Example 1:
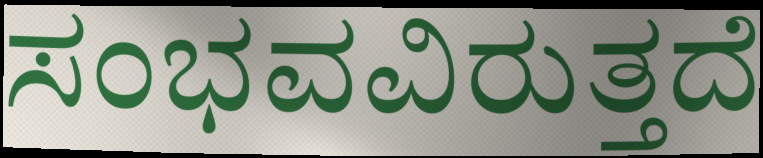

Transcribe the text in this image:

ಸಂಭವವಿರುತ್ತದೆ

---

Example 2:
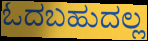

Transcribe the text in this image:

ಓದಬಹುದಲ್ಲ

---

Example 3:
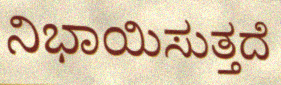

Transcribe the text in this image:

ನಿಭಾಯಿಸುತ್ತದೆ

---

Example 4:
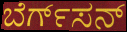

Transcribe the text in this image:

ಬೆರ್ಗ್‌ಸನ್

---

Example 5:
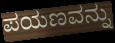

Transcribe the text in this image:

ಪಯಣವನ್ನು